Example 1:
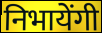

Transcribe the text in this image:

निभायेंगी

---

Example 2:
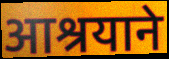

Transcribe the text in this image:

आश्रयाने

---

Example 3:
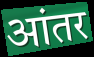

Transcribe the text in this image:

आंतर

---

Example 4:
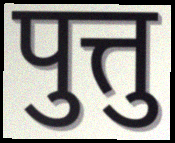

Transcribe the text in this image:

पुत्तु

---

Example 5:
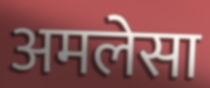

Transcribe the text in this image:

अमलेसा